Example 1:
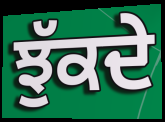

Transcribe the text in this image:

ਝੁੱਕਦੇ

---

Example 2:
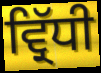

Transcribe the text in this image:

ਵ੍ਰਿੱਧੀ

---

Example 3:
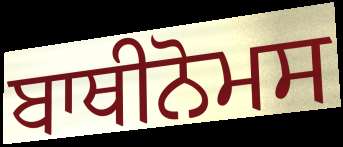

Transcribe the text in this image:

ਬਾਥੀਨੋਮਸ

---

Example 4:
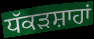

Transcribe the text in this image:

ਧੱਕੜਸ਼ਾਹਾਂ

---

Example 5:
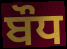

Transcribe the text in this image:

ਬੌਧ